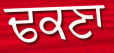
ਢਕਣਾ